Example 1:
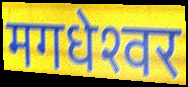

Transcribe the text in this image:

मगधेश्वर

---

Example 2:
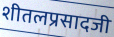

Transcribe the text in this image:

शीतलप्रसादजी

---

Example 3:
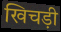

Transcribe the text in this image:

खिचड़ी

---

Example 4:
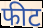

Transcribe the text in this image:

फीट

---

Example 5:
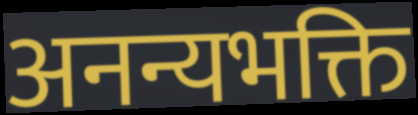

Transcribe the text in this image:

अनन्यभक्ति